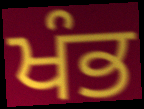
ਖੰਭ